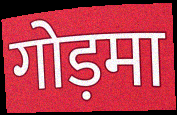
गोड़मा